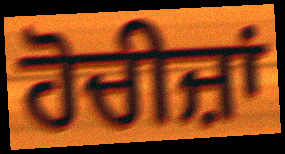
ਹੋਚੀਜ਼ਾਂ